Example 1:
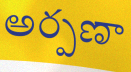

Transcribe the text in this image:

అర్పణా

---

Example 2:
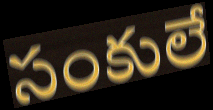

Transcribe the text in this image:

సంకులే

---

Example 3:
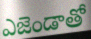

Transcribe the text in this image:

ఎజెండాతో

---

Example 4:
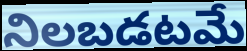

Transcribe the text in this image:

నిలబడటమే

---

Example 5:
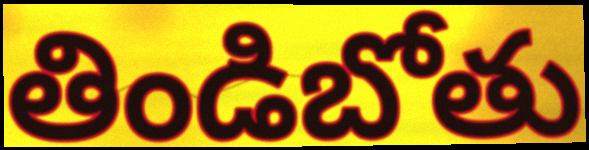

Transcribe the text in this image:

తిండిబోతు